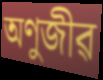
অণুজীৱ